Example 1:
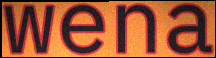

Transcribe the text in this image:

wena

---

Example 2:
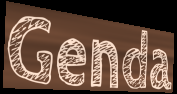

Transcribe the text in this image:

Genda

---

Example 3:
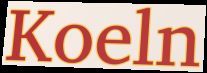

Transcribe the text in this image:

Koeln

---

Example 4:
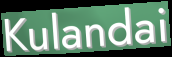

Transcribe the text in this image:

Kulandai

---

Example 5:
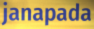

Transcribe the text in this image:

janapada